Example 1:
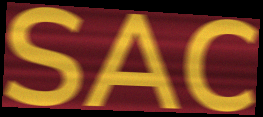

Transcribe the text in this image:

SAC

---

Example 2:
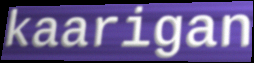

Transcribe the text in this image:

kaarigan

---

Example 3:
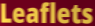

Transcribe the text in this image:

Leaflets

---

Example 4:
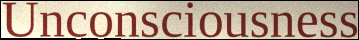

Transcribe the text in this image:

Unconsciousness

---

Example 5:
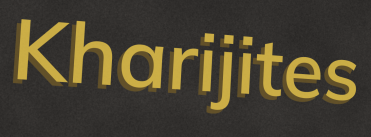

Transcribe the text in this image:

Kharijites